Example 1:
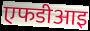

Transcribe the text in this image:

एफडीआइ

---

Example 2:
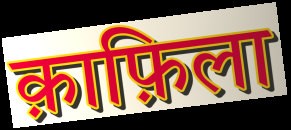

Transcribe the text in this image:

क़ाफ़िला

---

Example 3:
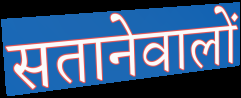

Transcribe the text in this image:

सतानेवालों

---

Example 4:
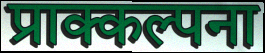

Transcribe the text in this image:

प्राक्कल्पना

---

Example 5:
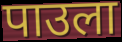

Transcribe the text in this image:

पाउला